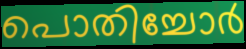
പൊതിച്ചോർ